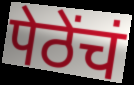
पेठेंचं